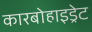
कारबोहाइड्रेट